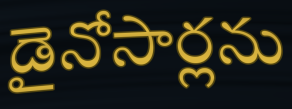
డైనోసార్లను